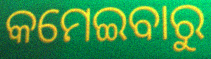
କମେଇବାରୁ